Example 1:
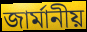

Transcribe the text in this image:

জাৰ্মানীয়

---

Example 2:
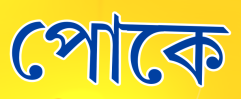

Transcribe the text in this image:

পোকে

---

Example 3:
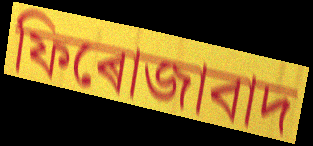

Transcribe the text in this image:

ফিৰোজাবাদ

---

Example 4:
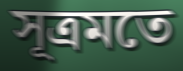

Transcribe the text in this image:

সূত্ৰমতে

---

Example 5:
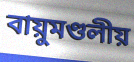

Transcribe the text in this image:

বায়ুমণ্ডলীয়